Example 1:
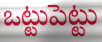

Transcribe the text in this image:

ఒట్టుపెట్టు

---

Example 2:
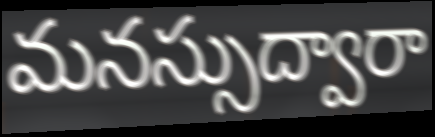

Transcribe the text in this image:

మనస్సుద్వారా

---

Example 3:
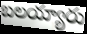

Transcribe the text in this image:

బలయ్యారు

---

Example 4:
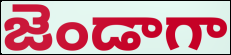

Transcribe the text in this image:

జెండాగా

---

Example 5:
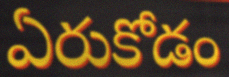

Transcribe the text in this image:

ఏరుకోడం